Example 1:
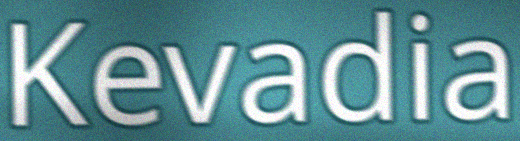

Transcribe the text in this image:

Kevadia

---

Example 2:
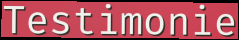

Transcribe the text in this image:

Testimonie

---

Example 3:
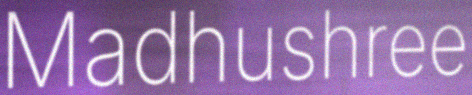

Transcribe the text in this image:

Madhushree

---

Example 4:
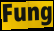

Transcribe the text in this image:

Fung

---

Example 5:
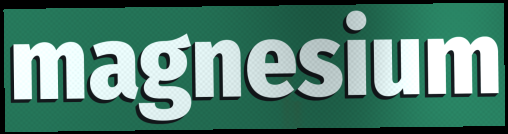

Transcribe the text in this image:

magnesium